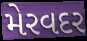
મેરવદર